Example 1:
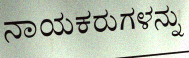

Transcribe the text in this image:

ನಾಯಕರುಗಳನ್ನು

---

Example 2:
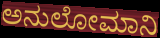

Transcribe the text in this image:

ಅನುಲೋಮಾನಿ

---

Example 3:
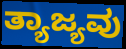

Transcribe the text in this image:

ತ್ಯಾಜ್ಯವು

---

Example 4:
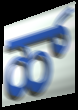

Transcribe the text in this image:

ಹ್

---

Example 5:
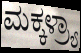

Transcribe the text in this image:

ಮಕ್ಕಳ್ರ್ಯಾ